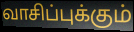
வாசிப்புக்கும்